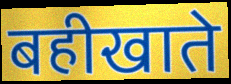
बहीखाते